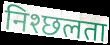
निश्छलता